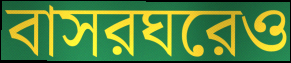
বাসরঘরেও